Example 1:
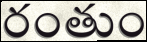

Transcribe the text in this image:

రంతుం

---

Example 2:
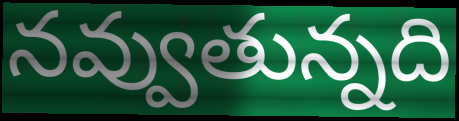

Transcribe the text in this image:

నవ్వుతున్నది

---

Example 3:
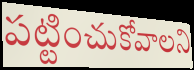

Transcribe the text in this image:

పట్టించుకోవాలని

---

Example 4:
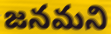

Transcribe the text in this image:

జనమని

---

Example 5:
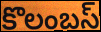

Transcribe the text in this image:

కొలంబస్